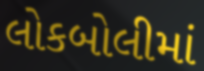
લોકબોલીમાં